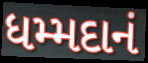
ધમ્મદાનં